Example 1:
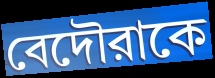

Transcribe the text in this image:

বেদৌরাকে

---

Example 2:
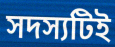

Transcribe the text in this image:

সদস্যটিই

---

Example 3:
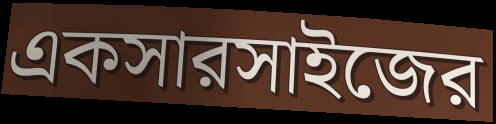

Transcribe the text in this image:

একসারসাইজের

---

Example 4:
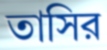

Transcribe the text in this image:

তাসির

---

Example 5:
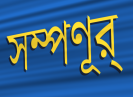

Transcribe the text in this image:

সম্পণূর্